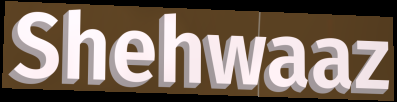
Shehwaaz